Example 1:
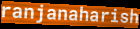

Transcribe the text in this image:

ranjanaharish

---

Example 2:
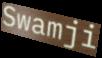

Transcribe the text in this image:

Swamji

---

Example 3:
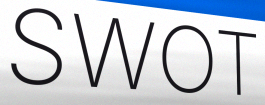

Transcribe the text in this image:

SWOT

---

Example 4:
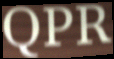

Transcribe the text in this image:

QPR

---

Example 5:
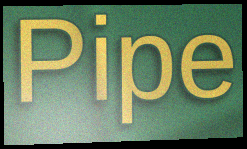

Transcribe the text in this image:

Pipe